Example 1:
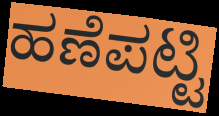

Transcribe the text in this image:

ಹಣೆಪಟ್ಟಿ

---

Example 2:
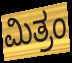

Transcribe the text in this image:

ಮಿತ್ರಂ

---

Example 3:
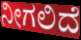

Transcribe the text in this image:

ನೀಗಲಿದೆ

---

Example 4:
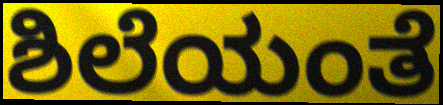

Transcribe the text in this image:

ಶಿಲೆಯಂತೆ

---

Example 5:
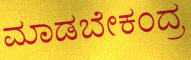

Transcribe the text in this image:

ಮಾಡಬೇಕಂದ್ರ